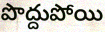
పొద్దుపోయి